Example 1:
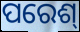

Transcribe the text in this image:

ପରେଶ୍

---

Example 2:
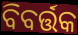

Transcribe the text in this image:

ବିବର୍ତ୍ତକ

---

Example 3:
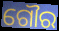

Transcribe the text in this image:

ଗୌର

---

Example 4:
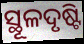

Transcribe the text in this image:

ସ୍ଥୂଳଦୃଷ୍ଟି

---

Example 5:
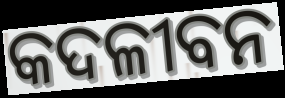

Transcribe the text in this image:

କଦଳୀବନ